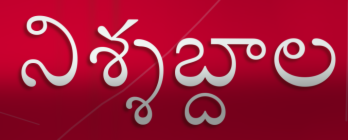
నిశ్శబ్దాల